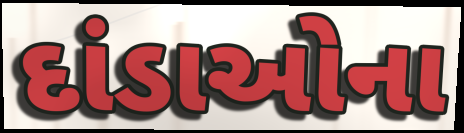
દાંડાઓના